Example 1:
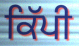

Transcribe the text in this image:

ਕਿੱਪੀ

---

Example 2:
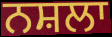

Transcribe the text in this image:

ਨਸ਼ਲਾ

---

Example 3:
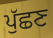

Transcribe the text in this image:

ਪੁੱਛਣ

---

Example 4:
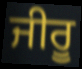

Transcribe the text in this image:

ਜੀਰੂ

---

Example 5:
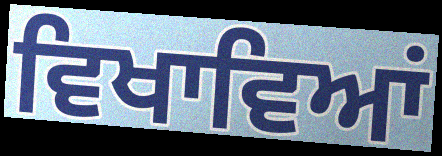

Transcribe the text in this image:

ਵਿਖਾਵਿਆਂ